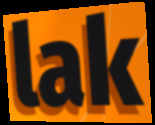
lak